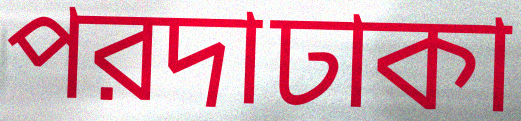
পরদাঢাকা